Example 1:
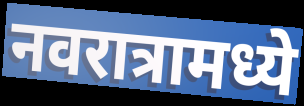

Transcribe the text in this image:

नवरात्रामध्ये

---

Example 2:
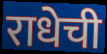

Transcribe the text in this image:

राधेची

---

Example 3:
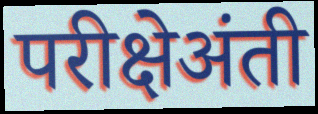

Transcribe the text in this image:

परीक्षेअंती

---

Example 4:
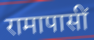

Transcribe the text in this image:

रामापासीं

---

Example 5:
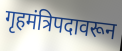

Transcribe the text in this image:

गृहमंत्रिपदावरून